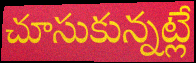
చూసుకున్నట్లే